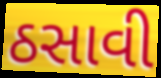
ઠસાવી